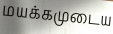
மயக்கமுடைய